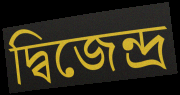
দ্বিজেন্দ্র